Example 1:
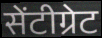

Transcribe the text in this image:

सेंटीग्रेट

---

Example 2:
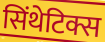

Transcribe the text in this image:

सिंथेटिक्स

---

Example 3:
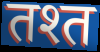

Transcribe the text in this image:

तश्त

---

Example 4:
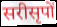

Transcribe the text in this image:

सरीसृपों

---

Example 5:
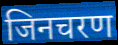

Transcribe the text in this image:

जिनचरण